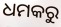
ଧମକରୁ